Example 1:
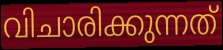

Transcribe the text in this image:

വിചാരിക്കുന്നത്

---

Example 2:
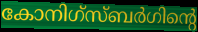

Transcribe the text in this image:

കോനിഗ്സ്ബർഗിന്റെ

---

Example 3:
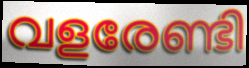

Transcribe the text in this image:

വളരേണ്ടി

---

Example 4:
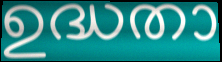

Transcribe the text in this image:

ഉദ്ധതാ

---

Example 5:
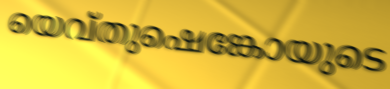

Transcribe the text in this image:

യെവ്തുഷെങ്കോയുടെ